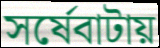
সর্ষেবাটায়